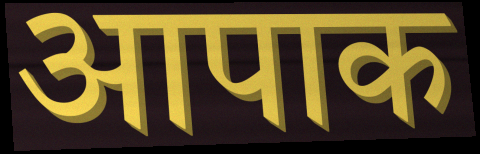
आपाक